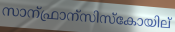
സാന്ഫ്രാന്സിസ്കോയില്